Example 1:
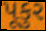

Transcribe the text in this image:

પૂકુર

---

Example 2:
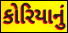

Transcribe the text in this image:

કોરિયાનું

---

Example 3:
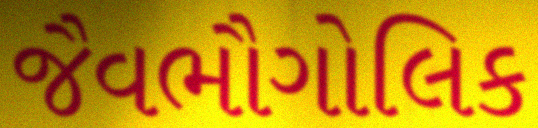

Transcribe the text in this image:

જૈવભૌગોલિક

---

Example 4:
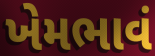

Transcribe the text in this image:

ખેમભાવં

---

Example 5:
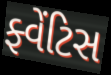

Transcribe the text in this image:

ફ્વેંટિસ